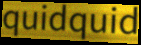
quidquid